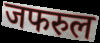
जफरुल